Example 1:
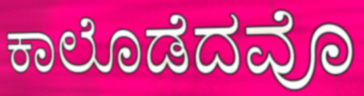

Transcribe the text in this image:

ಕಾಲೊಡೆದವೊ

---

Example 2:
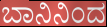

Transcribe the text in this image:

ಬಾನಿನಿಂದ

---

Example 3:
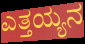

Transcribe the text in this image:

ಎತ್ತಯ್ಯನ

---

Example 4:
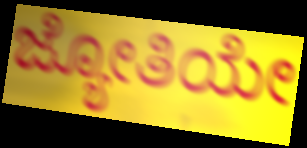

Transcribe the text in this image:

ಜ್ಯೋತಿಯೇ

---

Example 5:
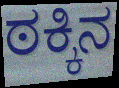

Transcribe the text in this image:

ಠಕ್ಕಿನ